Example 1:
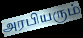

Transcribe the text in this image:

அரபியரும்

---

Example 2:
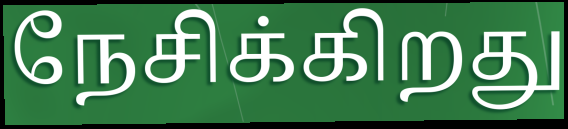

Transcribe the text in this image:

நேசிக்கிறது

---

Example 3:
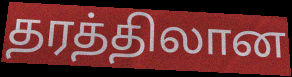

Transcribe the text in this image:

தரத்திலான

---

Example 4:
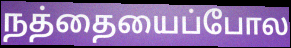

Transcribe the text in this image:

நத்தையைப்போல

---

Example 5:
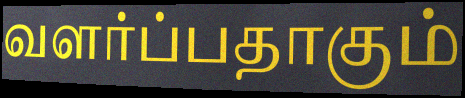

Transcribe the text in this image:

வளர்ப்பதாகும்